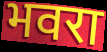
भवरा